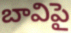
బావిపై